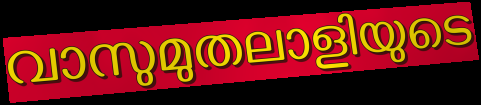
വാസുമുതലാളിയുടെ